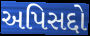
અપિસદ્દો